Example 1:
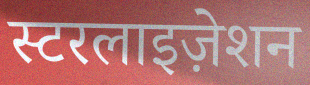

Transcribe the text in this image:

स्टरलाइज़ेशन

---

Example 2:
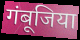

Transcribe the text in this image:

गंबूजिया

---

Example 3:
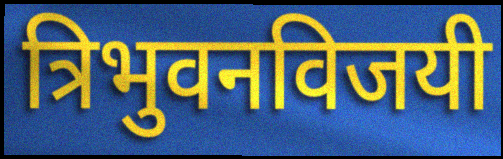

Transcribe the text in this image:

त्रिभुवनविजयी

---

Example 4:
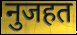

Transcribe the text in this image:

नुजहत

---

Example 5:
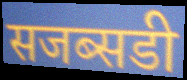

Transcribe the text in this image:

सजब्सडी